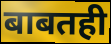
बाबतही